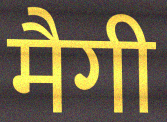
मैगी